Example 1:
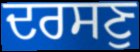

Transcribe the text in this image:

ਦਰਸਣੁ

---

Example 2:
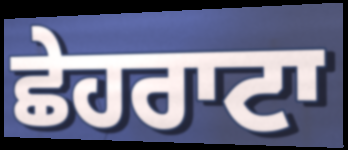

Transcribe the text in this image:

ਛੇਹਰਾਟਾ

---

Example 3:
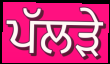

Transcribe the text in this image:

ਪੱਲੜੇ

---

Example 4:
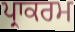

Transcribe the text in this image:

ਪ੍ਰਾਕਰਮ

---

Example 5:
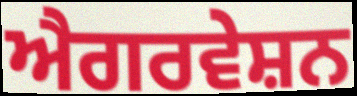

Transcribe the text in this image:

ਐਗਰਵੇਸ਼ਨ